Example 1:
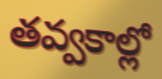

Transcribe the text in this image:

తవ్వకాల్లో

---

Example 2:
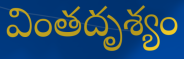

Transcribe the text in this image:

వింతదృశ్యం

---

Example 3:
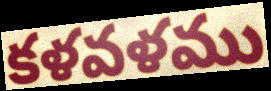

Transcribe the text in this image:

కళవళము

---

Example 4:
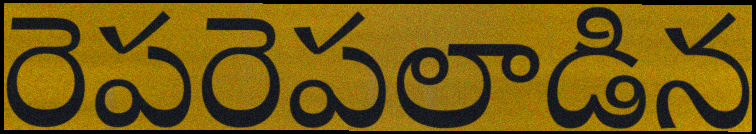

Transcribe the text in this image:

రెపరెపలాడిన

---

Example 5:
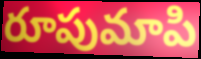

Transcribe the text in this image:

రూపుమాపి